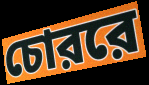
চোররে